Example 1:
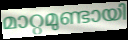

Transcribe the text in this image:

മാറ്റമുണ്ടായി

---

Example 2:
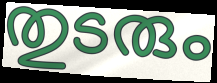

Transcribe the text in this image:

തുടരും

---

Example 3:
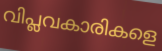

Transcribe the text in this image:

വിപ്ലവകാരികളെ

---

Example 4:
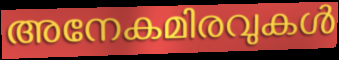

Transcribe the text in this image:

അനേകമിരവുകൾ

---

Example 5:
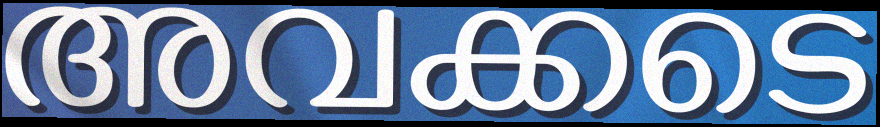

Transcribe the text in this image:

അവക്കടെ